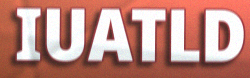
IUATLD